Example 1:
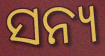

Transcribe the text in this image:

ସନ୍ୟ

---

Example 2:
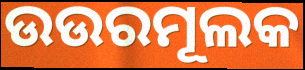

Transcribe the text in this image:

ଉଉରମୂଲକ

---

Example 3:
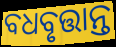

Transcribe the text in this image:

ବଧବୃତ୍ତାନ୍ତ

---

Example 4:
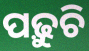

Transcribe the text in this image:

ପଢ଼ୁଚି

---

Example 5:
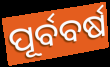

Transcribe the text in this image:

ପୂର୍ବବର୍ଷ